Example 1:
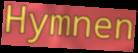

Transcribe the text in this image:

Hymnen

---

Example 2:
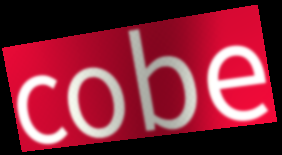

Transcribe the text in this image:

cobe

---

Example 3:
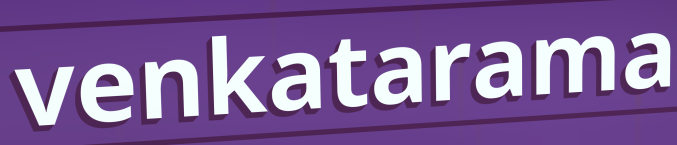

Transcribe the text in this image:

venkatarama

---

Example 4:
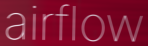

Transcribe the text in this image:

airflow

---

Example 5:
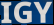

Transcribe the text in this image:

IGY